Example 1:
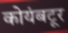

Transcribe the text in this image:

कोयंबटूर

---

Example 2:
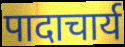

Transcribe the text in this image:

पादाचार्य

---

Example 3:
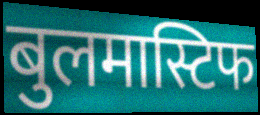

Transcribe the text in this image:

बुलमास्टिफ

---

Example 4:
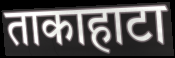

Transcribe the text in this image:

ताकाहाटा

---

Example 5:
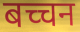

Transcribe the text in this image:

बच्‍चन